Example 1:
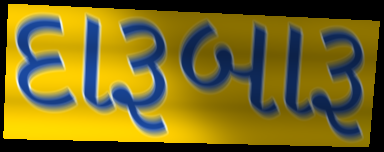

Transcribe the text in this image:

દારૂબારૂ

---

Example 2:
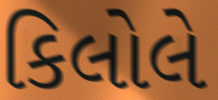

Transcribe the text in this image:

કિલોલે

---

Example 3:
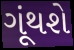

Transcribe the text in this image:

ગૂંથશે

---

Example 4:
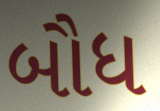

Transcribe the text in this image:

બૌધ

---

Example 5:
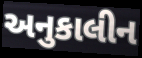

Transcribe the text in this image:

અનુકાલીન